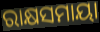
ରାକ୍ଷସମାୟା